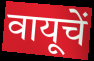
वायूचें